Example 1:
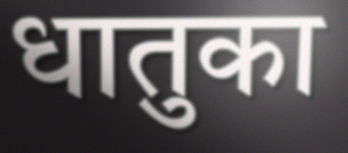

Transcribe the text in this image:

धातुका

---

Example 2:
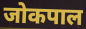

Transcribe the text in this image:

जोकपाल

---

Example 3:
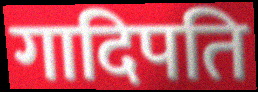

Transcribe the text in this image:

गादिपति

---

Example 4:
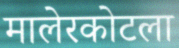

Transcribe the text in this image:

मालेरकोटला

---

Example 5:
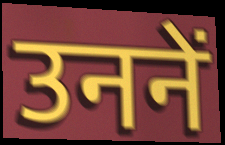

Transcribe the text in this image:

उननें